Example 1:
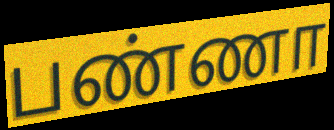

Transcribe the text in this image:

பண்ணா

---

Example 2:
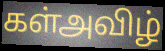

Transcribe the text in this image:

கள்அவிழ்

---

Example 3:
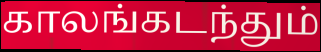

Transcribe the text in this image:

காலங்கடந்தும்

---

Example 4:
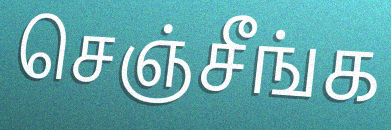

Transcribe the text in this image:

செஞ்சீங்க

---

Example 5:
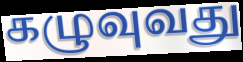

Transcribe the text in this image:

கழுவுவது